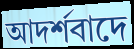
আদর্শবাদে